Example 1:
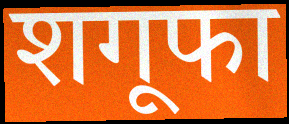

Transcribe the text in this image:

शगूफा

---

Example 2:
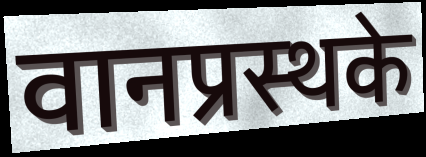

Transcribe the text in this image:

वानप्रस्थके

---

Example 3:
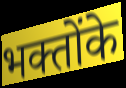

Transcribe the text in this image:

भक्तोंके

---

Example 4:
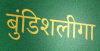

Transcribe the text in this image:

बुंडिशलीगा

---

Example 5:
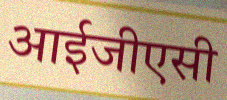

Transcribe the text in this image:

आईजीएसी